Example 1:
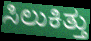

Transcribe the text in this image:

ಸಿಲುಕಿತ್ತು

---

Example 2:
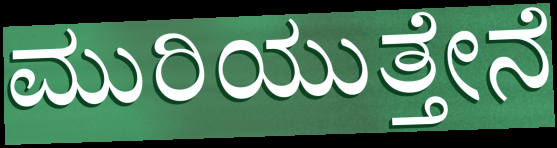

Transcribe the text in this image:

ಮುರಿಯುತ್ತೇನೆ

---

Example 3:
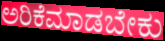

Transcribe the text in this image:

ಅರಿಕೆಮಾಡಬೇಕು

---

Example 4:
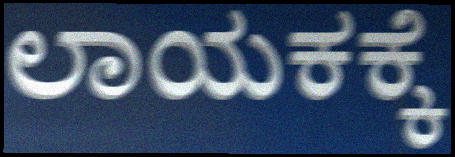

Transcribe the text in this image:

ಲಾಯಕಕ್ಕೆ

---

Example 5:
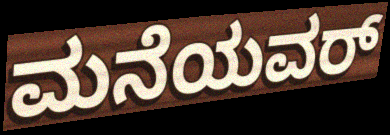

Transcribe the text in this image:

ಮನೆಯವರ್